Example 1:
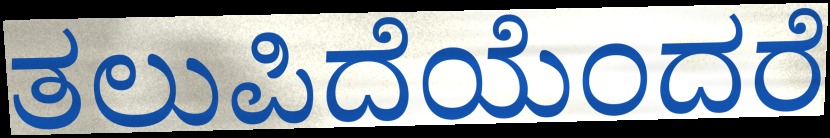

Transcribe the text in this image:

ತಲುಪಿದೆಯೆಂದರೆ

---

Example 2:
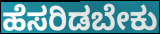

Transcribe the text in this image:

ಹೆಸರಿಡಬೇಕು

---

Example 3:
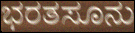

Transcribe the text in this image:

ಭರತಸೂನು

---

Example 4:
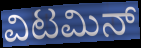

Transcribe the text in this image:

ವಿಟಮಿನ್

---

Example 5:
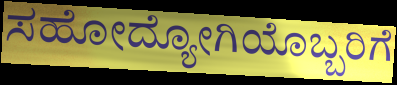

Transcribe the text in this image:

ಸಹೋದ್ಯೋಗಿಯೊಬ್ಬರಿಗೆ